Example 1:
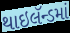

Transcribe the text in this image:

થાઇલૅન્ડમાં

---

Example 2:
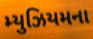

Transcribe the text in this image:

મ્યુઝિયમના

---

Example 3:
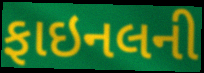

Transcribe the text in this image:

ફાઇનલની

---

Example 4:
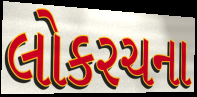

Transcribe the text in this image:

લોકરચના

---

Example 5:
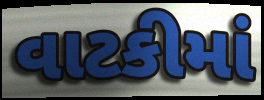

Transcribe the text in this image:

વાટકીમાં